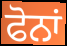
ਫੋਨਾਂ